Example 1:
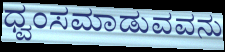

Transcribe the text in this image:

ಧ್ವಂಸಮಾಡುವವನು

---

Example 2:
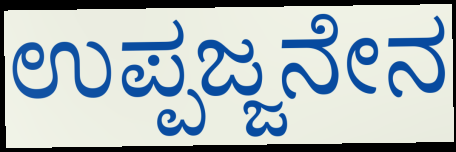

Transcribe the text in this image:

ಉಪ್ಪಜ್ಜನೇನ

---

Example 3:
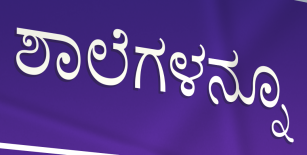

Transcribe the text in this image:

ಶಾಲೆಗಳನ್ನೂ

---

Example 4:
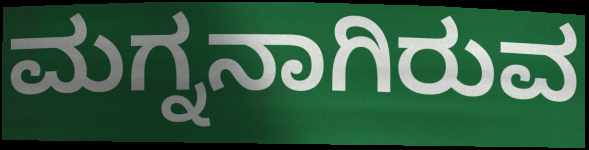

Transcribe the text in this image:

ಮಗ್ನನಾಗಿರುವ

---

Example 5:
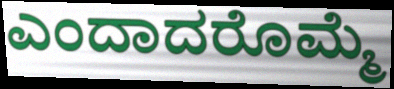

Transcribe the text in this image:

ಎಂದಾದರೊಮ್ಮೆ